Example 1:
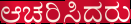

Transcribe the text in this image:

ಆಚರಿಸಿದರು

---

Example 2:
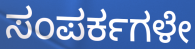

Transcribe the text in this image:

ಸಂಪರ್ಕಗಳೇ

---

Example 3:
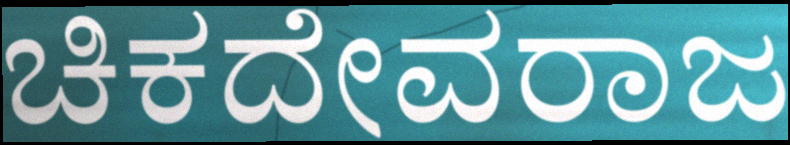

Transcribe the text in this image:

ಚಿಕದೇವರಾಜ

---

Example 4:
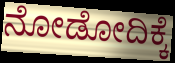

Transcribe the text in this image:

ನೋಡೋದಿಕ್ಕೆ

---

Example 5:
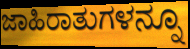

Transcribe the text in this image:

ಜಾಹಿರಾತುಗಳನ್ನೂ